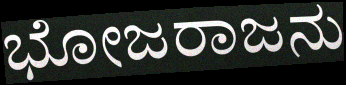
ಭೋಜರಾಜನು